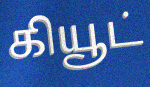
கியூட்